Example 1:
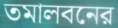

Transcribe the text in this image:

তমালবনের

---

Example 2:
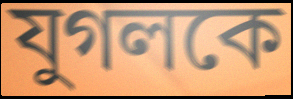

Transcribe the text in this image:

যুগলকে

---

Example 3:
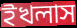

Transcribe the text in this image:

ইখলাস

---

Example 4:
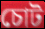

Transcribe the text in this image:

চোট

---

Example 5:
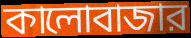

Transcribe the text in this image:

কালোবাজার